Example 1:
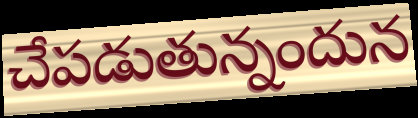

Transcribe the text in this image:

చేపడుతున్నందున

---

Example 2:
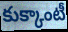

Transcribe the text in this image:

కుక్కాంటీ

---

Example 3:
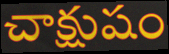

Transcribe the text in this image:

చాక్షుషం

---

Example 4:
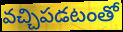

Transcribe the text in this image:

వచ్చిపడటంతో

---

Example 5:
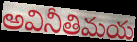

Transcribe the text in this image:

అవినీతిమయ